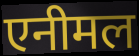
एनीमल